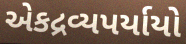
એકદ્રવ્યપર્યાયો